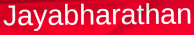
Jayabharathan